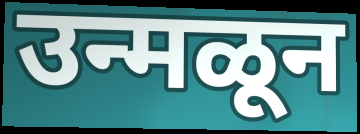
उन्मळून